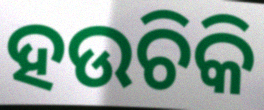
ହଉଚିକି